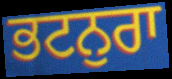
ਭਟਨੁਰਾ